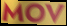
MOV